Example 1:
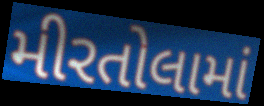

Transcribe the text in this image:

મીરતોલામાં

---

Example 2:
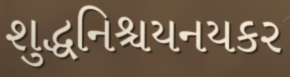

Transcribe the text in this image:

શુદ્ધનિશ્ચયનયકર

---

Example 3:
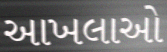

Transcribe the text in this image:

આખલાઓ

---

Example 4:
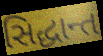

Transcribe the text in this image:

સિદ્ધાન્ત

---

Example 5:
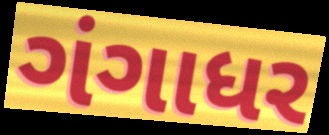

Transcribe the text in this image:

ગંગાધર